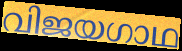
വിജയഗാഥ